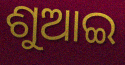
ଶୁଆଇ